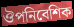
ঔপনিবেশিক